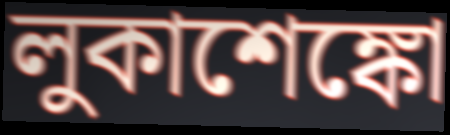
লুকাশেঙ্কো